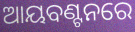
ଆୟବଣ୍ଟନରେ